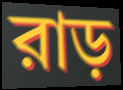
রাড়